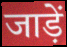
जाड़ें